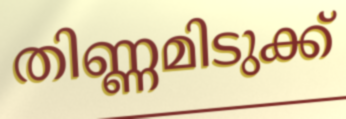
തിണ്ണമിടുക്ക്